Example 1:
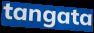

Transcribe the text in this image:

tangata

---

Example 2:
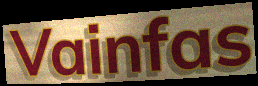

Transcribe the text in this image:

Vainfas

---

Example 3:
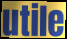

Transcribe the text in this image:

utile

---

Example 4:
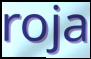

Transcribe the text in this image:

roja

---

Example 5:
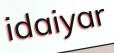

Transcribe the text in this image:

idaiyar